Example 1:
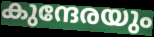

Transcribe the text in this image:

കുന്ദേരയും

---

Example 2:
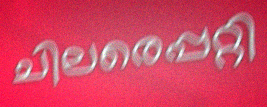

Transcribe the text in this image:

ചിലരെപ്പറ്റി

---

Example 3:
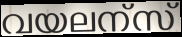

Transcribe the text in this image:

വയലന്സ്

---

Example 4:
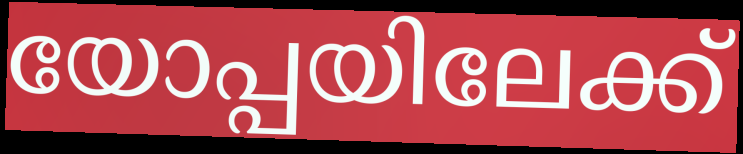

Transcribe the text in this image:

യോപ്പയിലേക്ക്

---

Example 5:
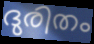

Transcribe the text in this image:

ദുരിതം